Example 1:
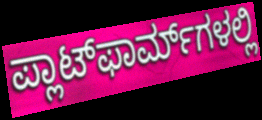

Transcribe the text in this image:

ಪ್ಲಾಟ್‌ಫಾರ್ಮ್‌ಗಳಲ್ಲಿ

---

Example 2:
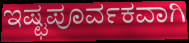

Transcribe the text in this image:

ಇಷ್ಟಪೂರ್ವಕವಾಗಿ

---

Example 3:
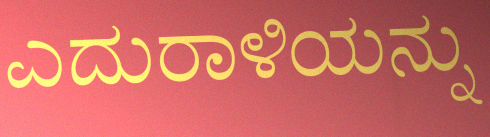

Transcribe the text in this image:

ಎದುರಾಳಿಯನ್ನು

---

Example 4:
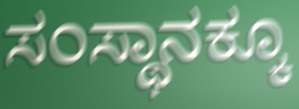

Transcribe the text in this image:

ಸಂಸ್ಥಾನಕ್ಕೂ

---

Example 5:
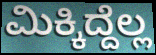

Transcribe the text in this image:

ಮಿಕ್ಕಿದ್ದೆಲ್ಲ